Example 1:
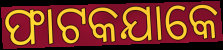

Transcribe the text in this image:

ଫାଟକଯାକେ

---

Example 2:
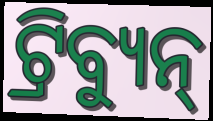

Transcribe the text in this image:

ଟ୍ରିବ୍ୟୁନ୍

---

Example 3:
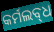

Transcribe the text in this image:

କର୍ମଲବ୍‌ଧ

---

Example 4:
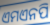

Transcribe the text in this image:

ଏମଏନପି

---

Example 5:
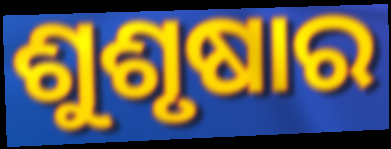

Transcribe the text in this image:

ଶୁଶୃଷାର